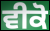
ਵੀਕੋ